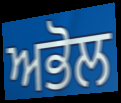
ਅਭੋਲ